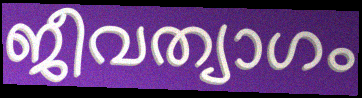
ജീവത്യാഗം